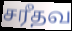
சரீதவ